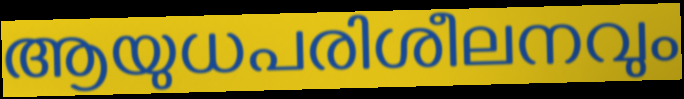
ആയുധപരിശീലനവും